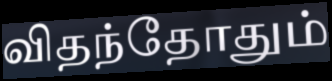
விதந்தோதும்